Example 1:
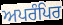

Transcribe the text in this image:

ਅਪਰੰਪਿਰ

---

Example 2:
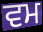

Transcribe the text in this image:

ਵਮ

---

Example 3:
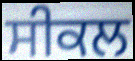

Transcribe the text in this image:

ਸੀਕਲ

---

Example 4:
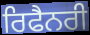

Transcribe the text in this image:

ਰਿਫੈਨਰੀ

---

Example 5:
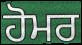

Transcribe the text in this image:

ਹੋਮਰ